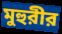
মুহুরীর